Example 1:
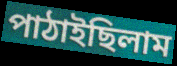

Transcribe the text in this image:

পাঠাইছিলাম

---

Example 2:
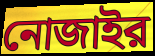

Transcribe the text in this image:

নোজাইর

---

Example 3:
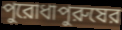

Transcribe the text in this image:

পুরোধাপুরুষের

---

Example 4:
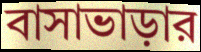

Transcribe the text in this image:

বাসাভাড়ার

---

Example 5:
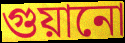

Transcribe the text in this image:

গুয়ানো